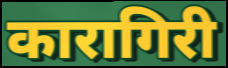
कारागिरी